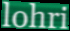
lohri